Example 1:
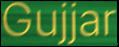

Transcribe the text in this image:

Gujjar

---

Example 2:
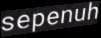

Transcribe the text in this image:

sepenuh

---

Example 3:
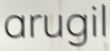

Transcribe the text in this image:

arugil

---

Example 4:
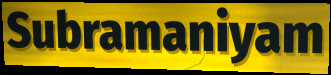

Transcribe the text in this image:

Subramaniyam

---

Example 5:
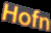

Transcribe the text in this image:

Hofn